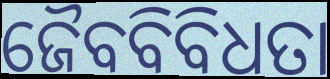
ଜୈବବିବିଧତା